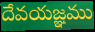
దేవయజ్ఞము